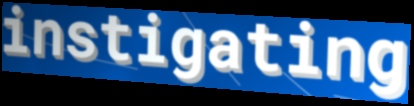
instigating